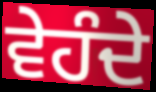
ਵੇਹੰਦੇ